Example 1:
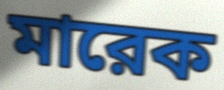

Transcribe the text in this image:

মারেক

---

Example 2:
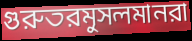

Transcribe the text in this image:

গুরুতরমুসলমানরা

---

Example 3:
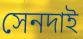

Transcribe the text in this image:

সেনদাই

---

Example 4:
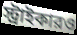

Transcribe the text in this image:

স্ট্রাইকারও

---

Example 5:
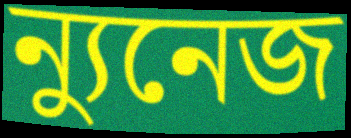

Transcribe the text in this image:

ন্যুনেজ